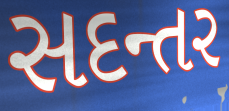
સદન્તર